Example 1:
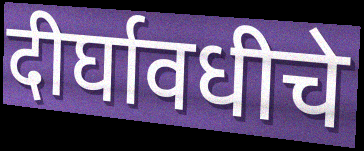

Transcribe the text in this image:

दीर्घावधीचे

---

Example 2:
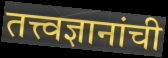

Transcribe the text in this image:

तत्त्वज्ञानांची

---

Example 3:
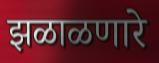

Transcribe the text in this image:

झळाळणारे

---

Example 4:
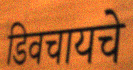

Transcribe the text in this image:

डिवचायचे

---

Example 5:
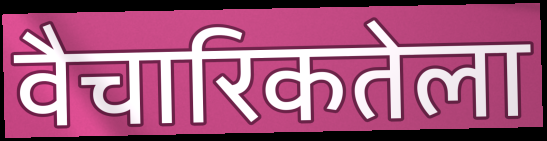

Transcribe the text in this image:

वैचारिकतेला